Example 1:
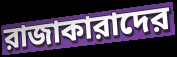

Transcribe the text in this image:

রাজাকারাদের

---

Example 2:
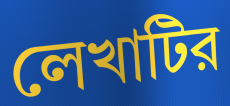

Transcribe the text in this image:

লেখাটির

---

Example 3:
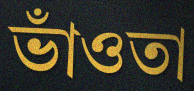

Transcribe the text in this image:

ভাঁওতা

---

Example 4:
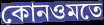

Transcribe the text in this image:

কোনওমতে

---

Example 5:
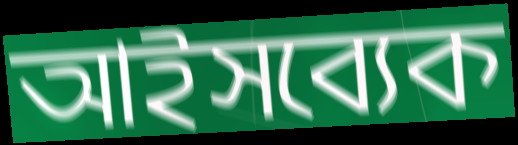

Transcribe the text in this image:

আইসব্যেক